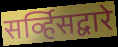
सर्व्हिसद्वारे